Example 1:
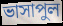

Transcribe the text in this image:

ভাসাপুল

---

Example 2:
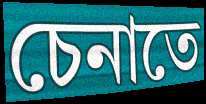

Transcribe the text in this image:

চেনাতে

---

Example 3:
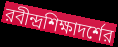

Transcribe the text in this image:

রবীন্দ্রশিক্ষাদর্শের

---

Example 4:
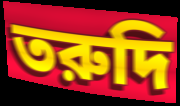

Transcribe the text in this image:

তরুদি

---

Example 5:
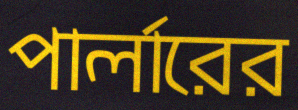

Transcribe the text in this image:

পার্লারের